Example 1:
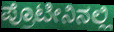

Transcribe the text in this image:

ಪ್ರೊಟೀನಿನಲ್ಲಿ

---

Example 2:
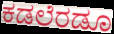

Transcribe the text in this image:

ಕಡಲೆರಡೂ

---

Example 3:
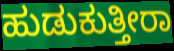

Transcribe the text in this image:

ಹುಡುಕುತ್ತೀರಾ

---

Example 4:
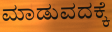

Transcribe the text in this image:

ಮಾಡುವದಕ್ಕೆ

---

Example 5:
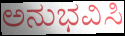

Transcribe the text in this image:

ಅನುಭವಿಸಿ